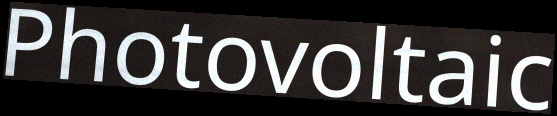
Photovoltaic